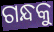
ଗନ୍ଧକୁ